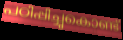
പഠിപ്പിച്ചുകൊണ്ട്